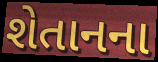
શેતાનના